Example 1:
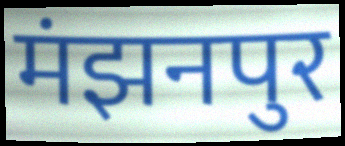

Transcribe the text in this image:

मंझनपुर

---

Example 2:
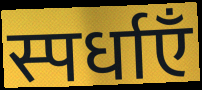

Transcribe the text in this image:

स्पर्धाएँ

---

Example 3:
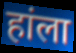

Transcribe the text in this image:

हांला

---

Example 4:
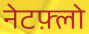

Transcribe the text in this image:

नेटफ़्लो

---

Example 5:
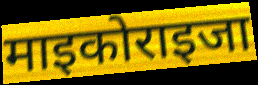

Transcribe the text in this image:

माइकोराइजा